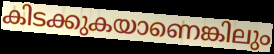
കിടക്കുകയാണെങ്കിലും